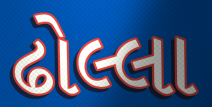
ઢોલ્લા